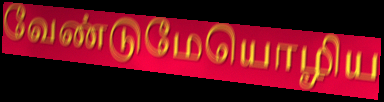
வேண்டுமேயொழிய